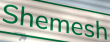
Shemesh